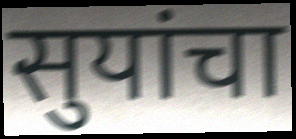
सुयांचा